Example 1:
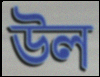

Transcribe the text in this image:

উল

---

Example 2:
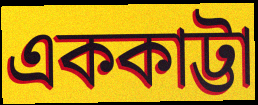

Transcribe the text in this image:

এককাট্টা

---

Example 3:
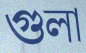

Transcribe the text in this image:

গুলা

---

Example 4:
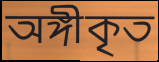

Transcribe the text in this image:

অঙ্গীকৃত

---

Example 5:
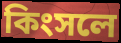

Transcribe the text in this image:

কিংসলে